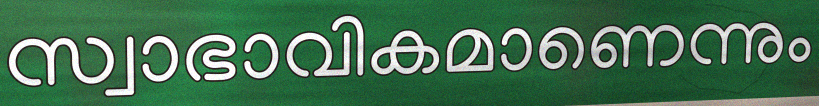
സ്വാഭാവികമാണെന്നും